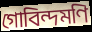
গোবিন্দমণি